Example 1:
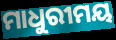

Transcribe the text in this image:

ମାଧୁରୀମୟ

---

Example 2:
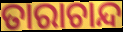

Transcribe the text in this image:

ତାରାଚାନ୍ଦ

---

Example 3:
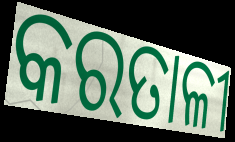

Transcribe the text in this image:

କରତାଳୀ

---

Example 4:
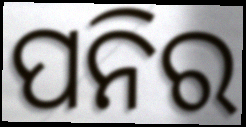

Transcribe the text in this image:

ପନିର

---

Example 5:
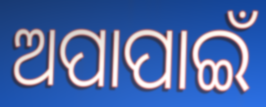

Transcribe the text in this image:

ଅପାପାଇଁ